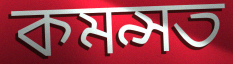
কমন্সত